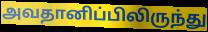
அவதானிப்பிலிருந்து